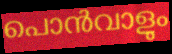
പൊൻവാളും